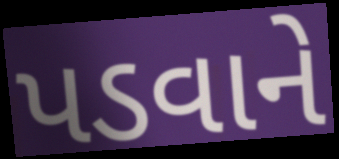
પડવાને